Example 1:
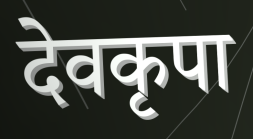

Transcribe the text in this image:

देवकृपा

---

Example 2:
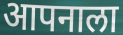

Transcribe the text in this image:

आपनाला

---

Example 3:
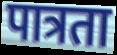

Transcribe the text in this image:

पात्रता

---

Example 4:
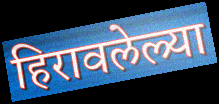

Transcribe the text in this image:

हिरावलेल्या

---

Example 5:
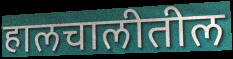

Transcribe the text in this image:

हालचालीतील